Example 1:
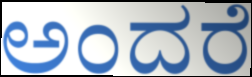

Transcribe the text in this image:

ಅಂದರೆ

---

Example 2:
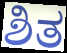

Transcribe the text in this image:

ಶಿತ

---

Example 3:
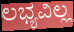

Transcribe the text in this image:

ಲಭ್ಯವಿಲ್ಲ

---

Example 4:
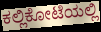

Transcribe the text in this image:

ಕಲ್ಲಿಕೋಟೆಯಲ್ಲಿ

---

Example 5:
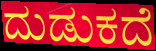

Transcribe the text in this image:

ದುಡುಕದೆ